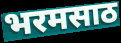
भरमसाठ